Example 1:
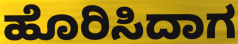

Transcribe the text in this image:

ಹೊರಿಸಿದಾಗ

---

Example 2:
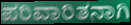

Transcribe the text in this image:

ಪರಿವಾರಿತನಾಗಿ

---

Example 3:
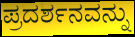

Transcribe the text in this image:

ಪ್ರದರ್ಶನವನ್ನು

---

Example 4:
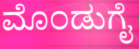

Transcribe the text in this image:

ಮೊಂಡುಗೈ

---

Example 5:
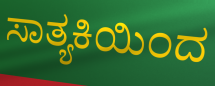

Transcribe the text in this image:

ಸಾತ್ಯಕಿಯಿಂದ